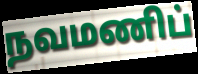
நவமணிப்